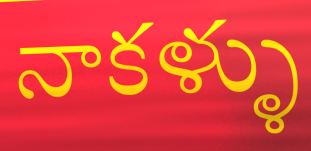
నాకళ్ళు